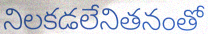
నిలకడలేనితనంతో